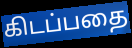
கிடப்பதை